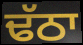
ਢੱਠਾ